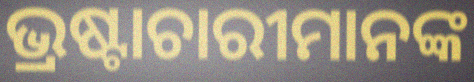
ଭ୍ରଷ୍ଟାଚାରୀମାନଙ୍କ